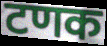
टणक